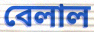
বেলাল